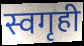
स्वगृही